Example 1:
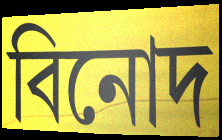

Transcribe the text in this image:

বিনোদ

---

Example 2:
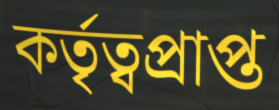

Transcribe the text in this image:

কৰ্তৃত্বপ্ৰাপ্ত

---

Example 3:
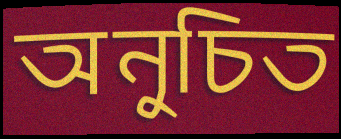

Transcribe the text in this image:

অনুচিত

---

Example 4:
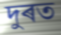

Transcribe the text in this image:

দুৰত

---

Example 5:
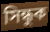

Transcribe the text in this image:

সিন্ধুক